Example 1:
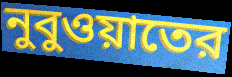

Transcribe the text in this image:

নুবুওয়াতের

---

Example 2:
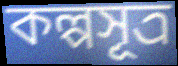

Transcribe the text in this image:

কল্পসূত্র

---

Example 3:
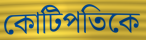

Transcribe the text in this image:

কোটিপতিকে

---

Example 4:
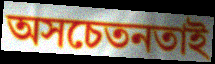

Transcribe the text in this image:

অসচেতনতাই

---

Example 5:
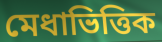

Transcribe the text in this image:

মেধাভিত্তিক